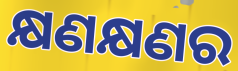
କ୍ଷଣକ୍ଷଣର